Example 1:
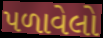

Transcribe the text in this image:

પળાવેલો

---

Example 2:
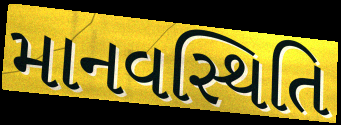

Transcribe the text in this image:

માનવસ્થિતિ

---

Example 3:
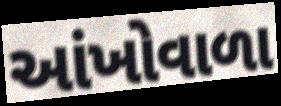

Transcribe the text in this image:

આંખોવાળા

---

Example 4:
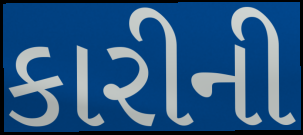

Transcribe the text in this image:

કારીની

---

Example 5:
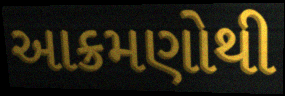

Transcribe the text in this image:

આક્રમણોથી